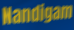
Nandigam